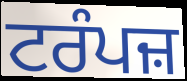
ਟਰੰਪਜ਼